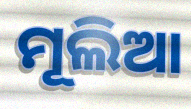
ମୂଲିଆ